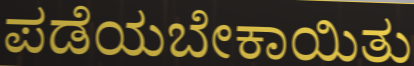
ಪಡೆಯಬೇಕಾಯಿತು